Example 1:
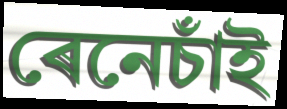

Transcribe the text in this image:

ৰেনেচাঁই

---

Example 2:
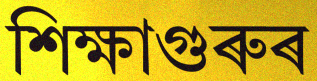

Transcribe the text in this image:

শিক্ষাগুৰুৰ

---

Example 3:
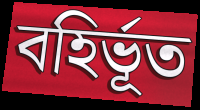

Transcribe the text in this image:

বহিৰ্ভূত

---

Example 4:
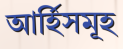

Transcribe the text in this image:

আৰ্হিসমূহ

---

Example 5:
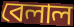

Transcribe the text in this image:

বেলাল